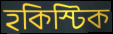
হকিস্টিক